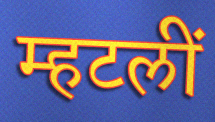
म्हटलीं